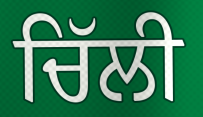
ਚਿੱਲੀ